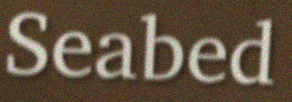
Seabed